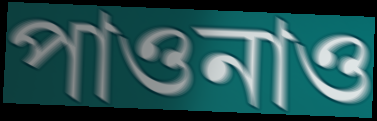
পাওনাও